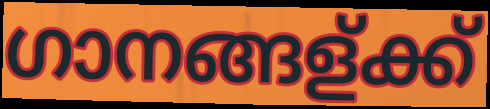
ഗാനങ്ങള്ക്ക്